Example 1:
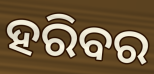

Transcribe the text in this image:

ହରିବର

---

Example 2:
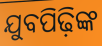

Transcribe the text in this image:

ଯୁବପିଢ଼ିଙ୍କ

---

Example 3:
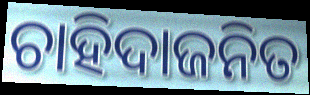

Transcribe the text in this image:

ଚାହିଦାଜନିତ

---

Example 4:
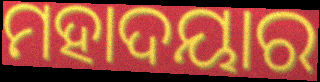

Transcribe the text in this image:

ମହାଦୟାର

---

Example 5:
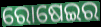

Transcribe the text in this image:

ରୋଷେଇର